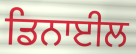
ਡਿਨਾਈਲ